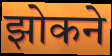
झोकने